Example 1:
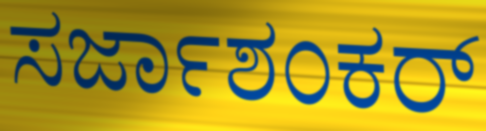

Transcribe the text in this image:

ಸರ್ಜಾಶಂಕರ್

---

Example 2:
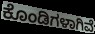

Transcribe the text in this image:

ಕೊಂಡಿಗಳಾಗಿವೆ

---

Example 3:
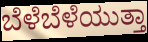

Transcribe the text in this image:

ಬೆಳೆಬೆಳೆಯುತ್ತಾ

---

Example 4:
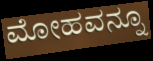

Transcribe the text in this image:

ಮೋಹವನ್ನೂ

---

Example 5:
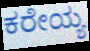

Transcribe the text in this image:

ಕರೇಯ್ಯ